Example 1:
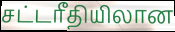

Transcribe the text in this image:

சட்டரீதியிலான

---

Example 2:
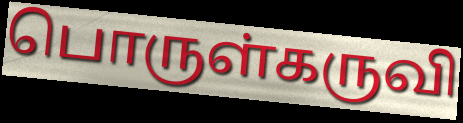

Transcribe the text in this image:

பொருள்கருவி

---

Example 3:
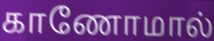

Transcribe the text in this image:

காணோமால்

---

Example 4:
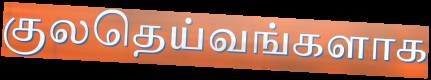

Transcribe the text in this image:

குலதெய்வங்களாக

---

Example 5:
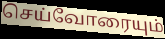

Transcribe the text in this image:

செய்வோரையும்